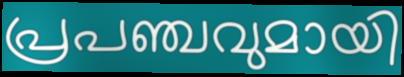
പ്രപഞ്ചവുമായി